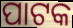
ପାଟକ